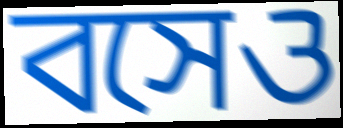
বসেও